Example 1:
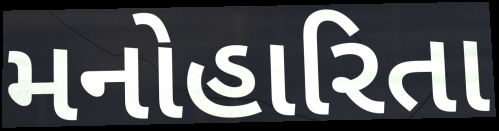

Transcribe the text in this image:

મનોહારિતા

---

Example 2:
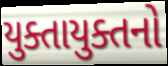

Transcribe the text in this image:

યુક્તાયુક્તનો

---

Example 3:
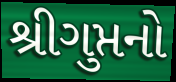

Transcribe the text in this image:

શ્રીગુપ્તનો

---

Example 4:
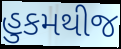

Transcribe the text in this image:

હુકમથીજ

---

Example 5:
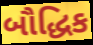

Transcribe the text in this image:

બૌદ્ધિક